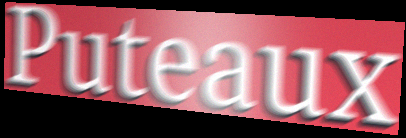
Puteaux